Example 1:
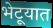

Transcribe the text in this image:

भेटूयात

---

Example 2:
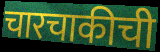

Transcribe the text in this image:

चारचाकीची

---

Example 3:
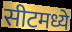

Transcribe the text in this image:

सीटमध्ये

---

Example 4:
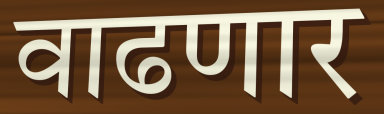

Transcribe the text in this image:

वाढणार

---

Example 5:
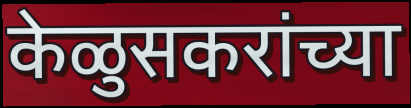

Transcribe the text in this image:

केळुसकरांच्या